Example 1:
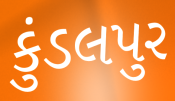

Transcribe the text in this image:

કુંડલપુર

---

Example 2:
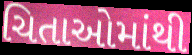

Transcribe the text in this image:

ચિતાઓમાંથી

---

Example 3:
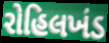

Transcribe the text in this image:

રોહિલખંડ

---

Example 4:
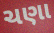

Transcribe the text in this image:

ચણા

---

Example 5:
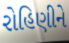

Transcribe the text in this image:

રોહિણીને